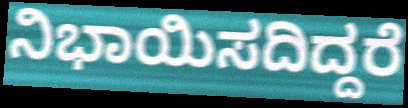
ನಿಭಾಯಿಸದಿದ್ದರೆ